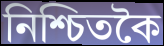
নিশ্চিতকৈ